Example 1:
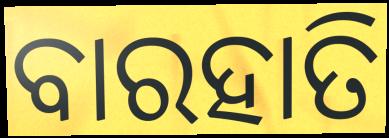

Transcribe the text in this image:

ବାରହାତି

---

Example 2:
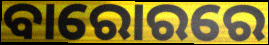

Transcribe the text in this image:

ବାରୋରରେ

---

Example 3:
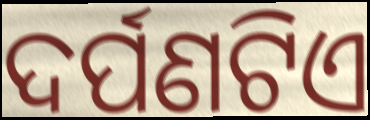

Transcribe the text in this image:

ଦର୍ପଣଟିଏ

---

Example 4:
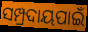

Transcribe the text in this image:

ସମ୍ପ୍ରଦାୟପାଇଁ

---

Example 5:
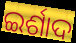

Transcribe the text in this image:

ଇର୍ଶାଦ